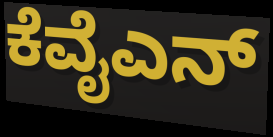
ಕೆವೈಎನ್